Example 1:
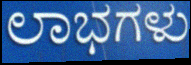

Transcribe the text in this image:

ಲಾಭಗಳು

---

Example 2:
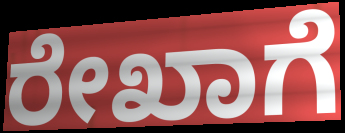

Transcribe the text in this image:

ರೇಖಾಗೆ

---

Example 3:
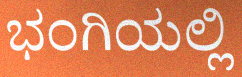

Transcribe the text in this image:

ಭಂಗಿಯಲ್ಲಿ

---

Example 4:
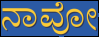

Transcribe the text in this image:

ನಾವೋ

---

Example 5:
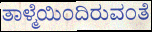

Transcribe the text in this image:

ತಾಳ್ಮೆಯಿಂದಿರುವಂತೆ